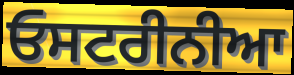
ਓਸਟਰੀਨੀਆ